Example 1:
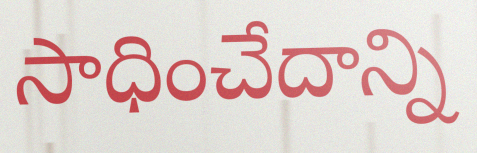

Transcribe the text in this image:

సాధించేదాన్ని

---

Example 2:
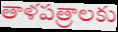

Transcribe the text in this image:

తాళపత్రాలకు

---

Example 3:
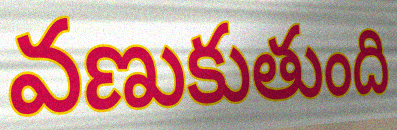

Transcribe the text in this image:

వణుకుతుంది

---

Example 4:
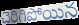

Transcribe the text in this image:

చెరిగిపోయిన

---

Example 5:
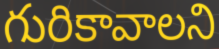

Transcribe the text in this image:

గురికావాలని